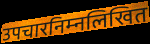
उपचारनिम्नलिखित